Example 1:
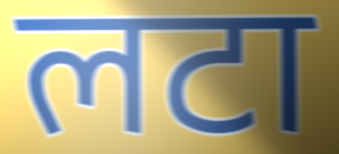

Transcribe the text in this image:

लटा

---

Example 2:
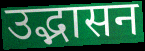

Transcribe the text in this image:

उद्भासन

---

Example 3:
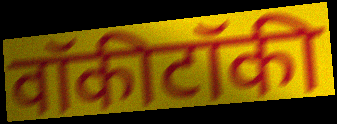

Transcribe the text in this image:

वॉकीटॉकी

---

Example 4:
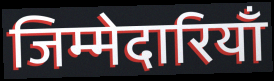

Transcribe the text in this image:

जिम्मेदारियाँ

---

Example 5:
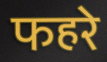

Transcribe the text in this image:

फहरे